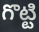
గొట్టి